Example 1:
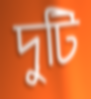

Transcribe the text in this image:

দুটি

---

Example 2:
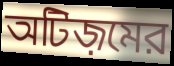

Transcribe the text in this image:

অটিজ়মের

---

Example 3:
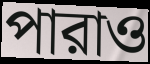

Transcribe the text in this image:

পারাও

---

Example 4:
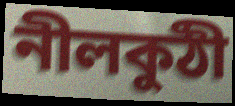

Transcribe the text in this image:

নীলকুঠী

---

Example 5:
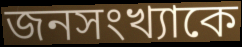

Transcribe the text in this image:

জনসংখ্যাকে